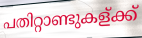
പതിറ്റാണ്ടുകള്ക്ക്